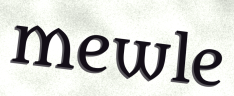
mewle